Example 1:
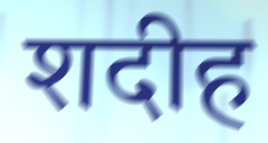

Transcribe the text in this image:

शदीह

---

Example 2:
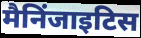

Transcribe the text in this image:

मैनिंजाइटिस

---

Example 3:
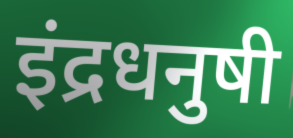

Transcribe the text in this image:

इंद्रधनुषी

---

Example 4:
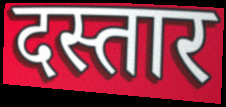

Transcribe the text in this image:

दस्तार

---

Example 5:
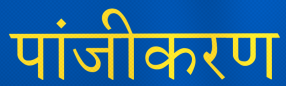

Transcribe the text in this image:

पांजीकरण